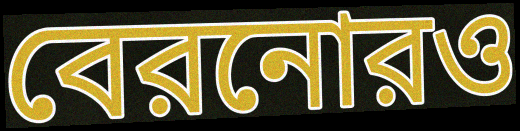
বেরনোরও